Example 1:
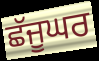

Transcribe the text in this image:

ਛੱਜੂਘਰ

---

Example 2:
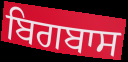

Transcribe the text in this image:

ਬਿਗਬਾਸ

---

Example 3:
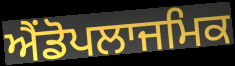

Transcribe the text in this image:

ਐਂਡੋਪਲਾਜਮਿਕ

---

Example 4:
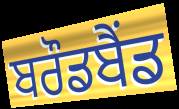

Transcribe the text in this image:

ਬਰੌਡਬੈਂਡ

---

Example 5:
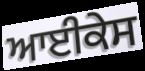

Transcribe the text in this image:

ਆਈਕੇਸ